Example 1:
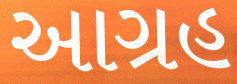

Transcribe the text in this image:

આગ્રહ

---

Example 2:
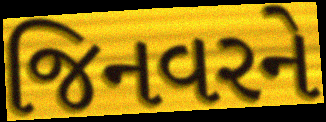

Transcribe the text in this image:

જિનવરને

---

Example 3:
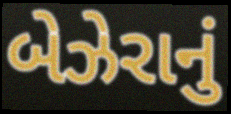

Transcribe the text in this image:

બેઝેરાનું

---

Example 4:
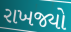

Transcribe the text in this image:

રાખજ્યો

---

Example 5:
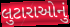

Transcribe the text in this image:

લુટારાઓનું